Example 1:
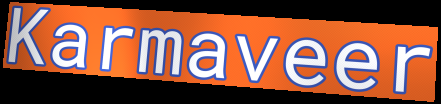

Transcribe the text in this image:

Karmaveer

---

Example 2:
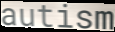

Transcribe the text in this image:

autism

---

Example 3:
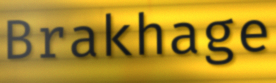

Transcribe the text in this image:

Brakhage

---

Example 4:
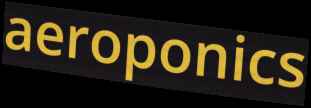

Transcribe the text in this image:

aeroponics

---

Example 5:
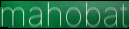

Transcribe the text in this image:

mahobat